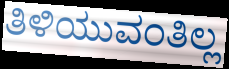
ತಿಳಿಯುವಂತಿಲ್ಲ